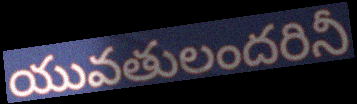
యువతులందరినీ